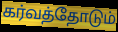
கர்வத்தோடும்